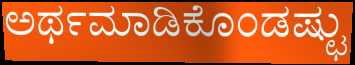
ಅರ್ಥಮಾಡಿಕೊಂಡಷ್ಟು